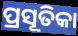
ପ୍ରସୂତିକା